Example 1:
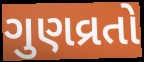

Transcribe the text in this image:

ગુણવ્રતો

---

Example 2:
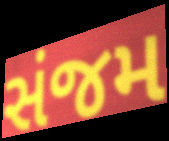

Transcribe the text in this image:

સંજમ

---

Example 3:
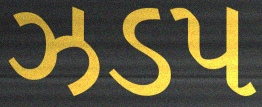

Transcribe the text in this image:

ઝડપ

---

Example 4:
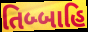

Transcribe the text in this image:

તિબ્બાહિ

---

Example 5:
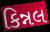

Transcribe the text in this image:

કિન્નલ